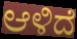
ಆಳಿದೆ